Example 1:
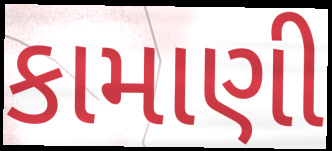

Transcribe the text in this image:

કામાણી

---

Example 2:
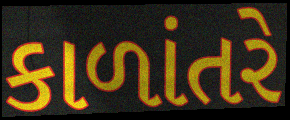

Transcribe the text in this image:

કાળાંતરે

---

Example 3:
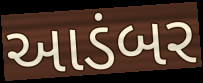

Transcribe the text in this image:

આડંબર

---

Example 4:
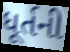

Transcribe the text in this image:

ધૂર્તની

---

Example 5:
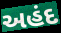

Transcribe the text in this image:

અહંદ